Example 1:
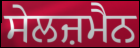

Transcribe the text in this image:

ਸੇਲਜ਼ਮੈਨ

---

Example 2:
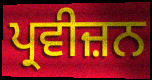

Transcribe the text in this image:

ਪ੍ਰਵੀਜ਼ਨ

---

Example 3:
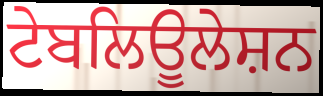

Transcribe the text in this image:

ਟੇਬਲਿਊਲੇਸ਼ਨ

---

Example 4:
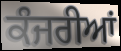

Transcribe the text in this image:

ਕੰਜਰੀਆਂ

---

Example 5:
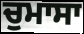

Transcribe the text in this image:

ਚੁਮਾਸਾ